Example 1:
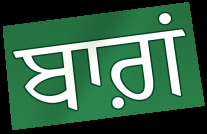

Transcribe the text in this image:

ਬਾਗ਼ਂ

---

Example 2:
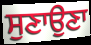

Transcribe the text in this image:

ਸੁਣਾਉਣਾ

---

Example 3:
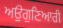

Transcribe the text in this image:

ਅਉਗੁਣਿਆਰੀ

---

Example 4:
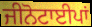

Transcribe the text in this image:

ਜੀਨੋਟਾਈਪਾਂ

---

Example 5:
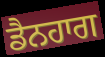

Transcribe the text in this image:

ਡੈਨਹਾਗ